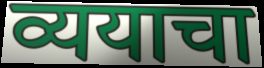
व्ययाचा